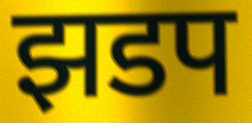
झडप